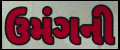
ઉમંગની